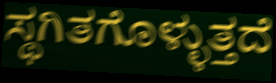
ಸ್ಥಗಿತಗೊಳ್ಳುತ್ತದೆ